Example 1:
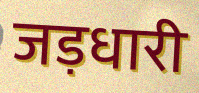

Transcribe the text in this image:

जड़धारी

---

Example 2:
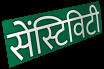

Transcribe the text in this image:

सेंस्टिविटी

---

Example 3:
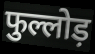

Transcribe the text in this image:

फुल्लोड़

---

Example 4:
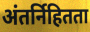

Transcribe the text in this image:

अंतर्निहितता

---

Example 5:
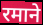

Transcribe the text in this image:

रमाने